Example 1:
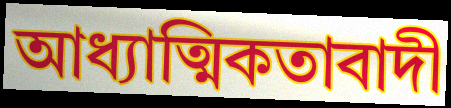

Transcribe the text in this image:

আধ্যাত্মিকতাবাদী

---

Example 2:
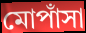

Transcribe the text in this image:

মোপাঁসা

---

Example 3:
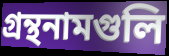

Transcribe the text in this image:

গ্রন্থনামগুলি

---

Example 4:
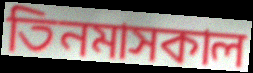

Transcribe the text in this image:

তিনমাসকাল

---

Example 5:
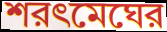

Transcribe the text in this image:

শরৎমেঘের